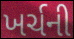
ખર્ચની